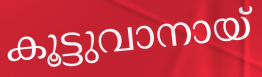
കൂട്ടുവാനായ്